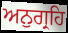
ਅਨੁਗ੍ਰਹਿ